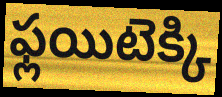
ఫ్లయిటెక్కి